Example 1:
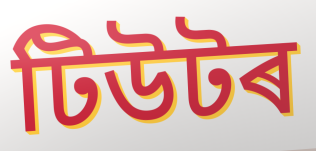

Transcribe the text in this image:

টিউটৰ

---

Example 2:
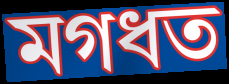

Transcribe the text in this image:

মগধত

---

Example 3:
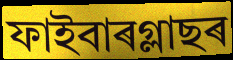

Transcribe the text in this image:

ফাইবাৰগ্লাছৰ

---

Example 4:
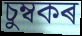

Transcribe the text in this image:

চুম্বকৰ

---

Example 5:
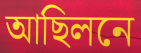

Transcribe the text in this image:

আছিলনে